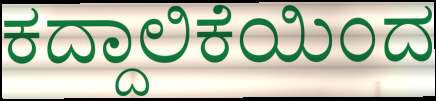
ಕದ್ದಾಲಿಕೆಯಿಂದ